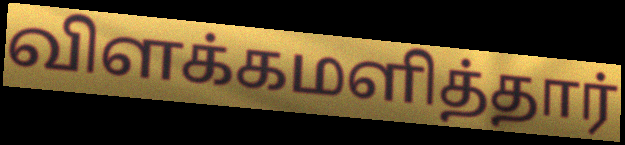
விளக்கமளித்தார்